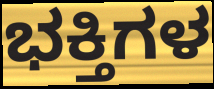
ಭಕ್ತಿಗಳ